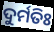
ଦୁର୍ମତିଃ